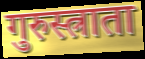
गुरुस्त्राता